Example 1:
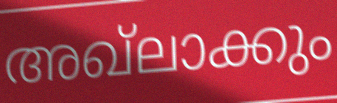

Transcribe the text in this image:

അഖ്ലാക്കും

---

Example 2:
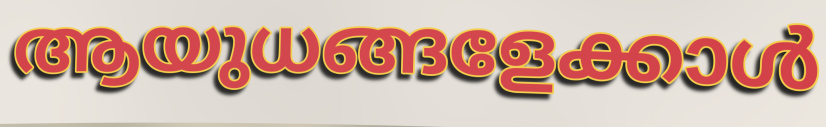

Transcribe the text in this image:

ആയുധങ്ങളേക്കാൾ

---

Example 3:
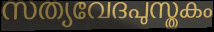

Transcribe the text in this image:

സത്യവേദപുസ്തകം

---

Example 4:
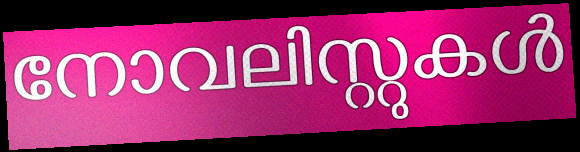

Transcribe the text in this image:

നോവലിസ്റ്റുകൾ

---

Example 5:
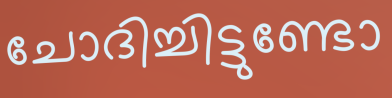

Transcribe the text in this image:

ചോദിച്ചിട്ടുണ്ടോ